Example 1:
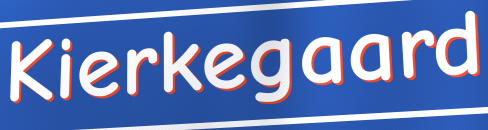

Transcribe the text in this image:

Kierkegaard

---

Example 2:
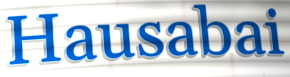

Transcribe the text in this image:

Hausabai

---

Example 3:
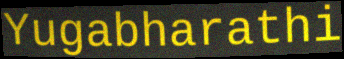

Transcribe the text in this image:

Yugabharathi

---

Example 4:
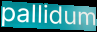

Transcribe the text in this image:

pallidum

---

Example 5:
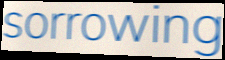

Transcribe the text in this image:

sorrowing